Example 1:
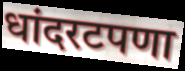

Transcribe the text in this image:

धांदरटपणा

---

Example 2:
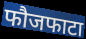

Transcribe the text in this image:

फौजफाटा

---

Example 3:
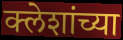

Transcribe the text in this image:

क्लेशांच्या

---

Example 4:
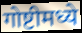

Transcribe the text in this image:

गोष्टीमध्ये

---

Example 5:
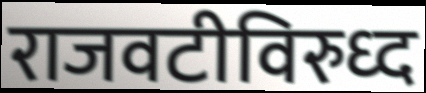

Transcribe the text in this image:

राजवटीविरुध्द